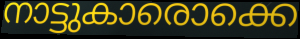
നാട്ടുകാരൊക്കെ